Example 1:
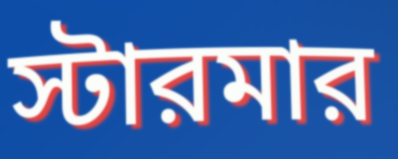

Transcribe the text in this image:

স্টারমার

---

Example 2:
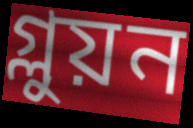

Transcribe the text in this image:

গ্লুয়ন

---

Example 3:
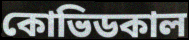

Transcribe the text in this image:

কোভিডকাল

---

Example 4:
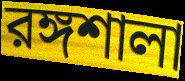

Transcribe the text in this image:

রঙ্গশালা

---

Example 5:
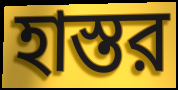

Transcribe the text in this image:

হাস্তর